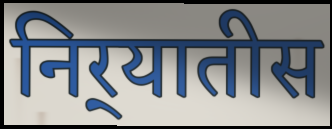
निर्यातीस